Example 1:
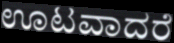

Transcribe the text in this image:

ಊಟವಾದರೆ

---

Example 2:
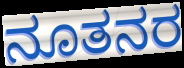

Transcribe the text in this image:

ನೂತನರ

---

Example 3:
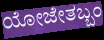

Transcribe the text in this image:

ಯೋಜೇತಬ್ಬಂ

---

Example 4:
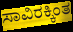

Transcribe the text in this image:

ಸಾವಿರಕ್ಕಿಂತ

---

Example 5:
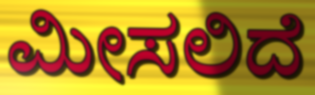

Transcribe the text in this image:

ಮೀಸಲಿದೆ